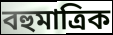
বহুমাত্ৰিক